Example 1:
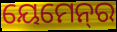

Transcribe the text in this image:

ୟେମେନ୍‌ର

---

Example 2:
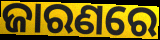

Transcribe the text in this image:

ଜାରଣରେ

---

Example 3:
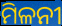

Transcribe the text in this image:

ମିଳନୀ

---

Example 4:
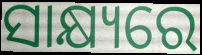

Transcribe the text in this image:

ସାକ୍ଷ୍ୟରେ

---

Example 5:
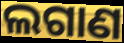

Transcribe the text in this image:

ଲଗାଣ